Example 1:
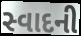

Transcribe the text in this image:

સ્વાદની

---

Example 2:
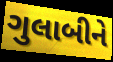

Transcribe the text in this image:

ગુલાબીને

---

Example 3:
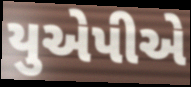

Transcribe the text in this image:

યુએપીએ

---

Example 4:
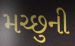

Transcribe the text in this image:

મચ્છુની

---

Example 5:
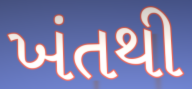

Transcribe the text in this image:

ખંતથી